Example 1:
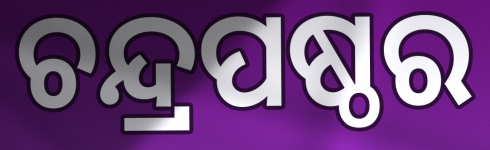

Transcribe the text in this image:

ଚନ୍ଦ୍ରପଷ୍ଠର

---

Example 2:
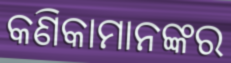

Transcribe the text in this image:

କଣିକାମାନଙ୍କର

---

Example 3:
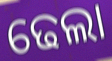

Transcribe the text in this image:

ଢେଲା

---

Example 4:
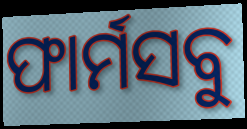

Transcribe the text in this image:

ଫାର୍ମସବୁ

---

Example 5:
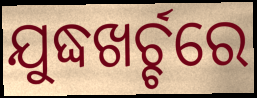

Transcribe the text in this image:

ଯୁଦ୍ଧଖର୍ଚ୍ଚରେ